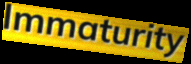
Immaturity